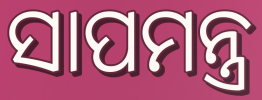
ସାପମନ୍ତ୍ର